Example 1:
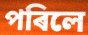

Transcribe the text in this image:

পৰিলে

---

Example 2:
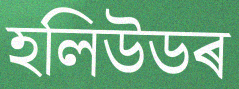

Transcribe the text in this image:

হলিউডৰ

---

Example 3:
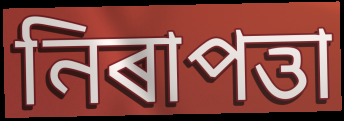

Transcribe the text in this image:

নিৰাপত্তা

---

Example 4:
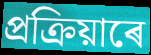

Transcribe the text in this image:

প্ৰক্ৰিয়াৰে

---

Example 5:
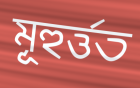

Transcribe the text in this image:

মূহুৰ্ত্তত